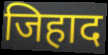
जिहाद